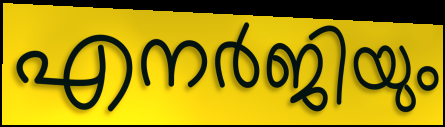
എനർജിയും